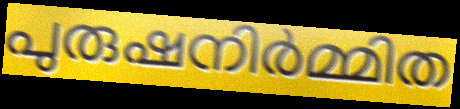
പുരുഷനിർമ്മിത